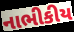
નાભીકીય